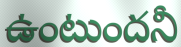
ఉంటుందనీ